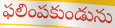
ఫలింపకుండును